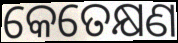
କେତେକ୍ଷଣ